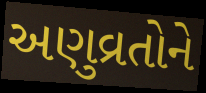
અણુવ્રતોને